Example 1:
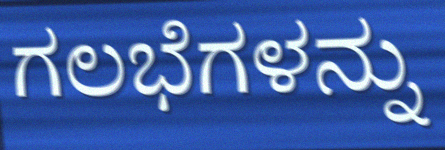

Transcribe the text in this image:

ಗಲಭೆಗಳನ್ನು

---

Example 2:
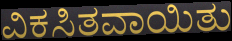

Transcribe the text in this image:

ವಿಕಸಿತವಾಯಿತು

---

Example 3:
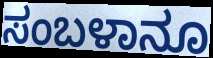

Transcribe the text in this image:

ಸಂಬಳಾನೂ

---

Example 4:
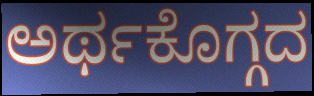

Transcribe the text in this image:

ಅರ್ಥಕೊಗ್ಗದ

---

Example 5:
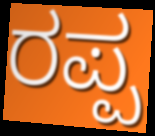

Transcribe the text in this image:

ರಪ್ಪ